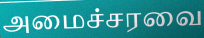
அமைச்சரவை